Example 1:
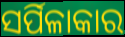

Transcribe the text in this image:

ସର୍ପିଳାକାର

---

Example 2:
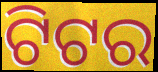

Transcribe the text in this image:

ଟିଟର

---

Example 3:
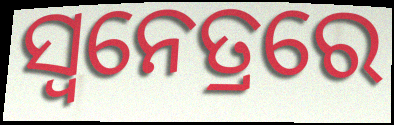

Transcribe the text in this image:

ସ୍ୱନେତ୍ରରେ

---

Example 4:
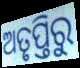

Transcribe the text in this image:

ଅତୃପ୍ତିରୁ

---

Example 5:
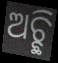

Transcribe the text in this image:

ଅଚ୍ଛି